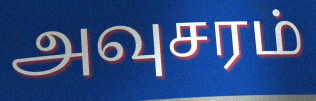
அவுசரம்